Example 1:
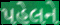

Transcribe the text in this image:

પહેલને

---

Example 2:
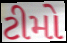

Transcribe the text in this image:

ટીમો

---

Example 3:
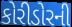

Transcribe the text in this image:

કોરીડોરની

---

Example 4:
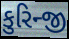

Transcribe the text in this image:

કુરિન્જી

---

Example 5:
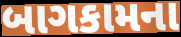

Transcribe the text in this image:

બાગકામના